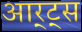
आर्ट्स